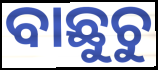
ବାଛୁଚୁ